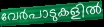
വേർപാടുകളിൽ